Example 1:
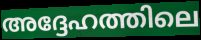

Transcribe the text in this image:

അദ്ദേഹത്തിലെ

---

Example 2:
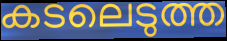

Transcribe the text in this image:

കടലെടുത്ത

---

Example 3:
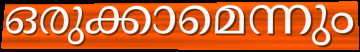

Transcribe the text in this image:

ഒരുക്കാമെന്നും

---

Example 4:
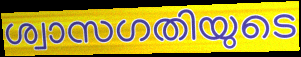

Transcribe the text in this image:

ശ്വാസഗതിയുടെ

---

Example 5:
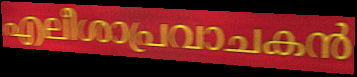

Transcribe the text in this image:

എലീശാപ്രവാചകൻ